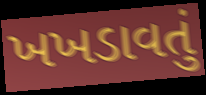
ખખડાવતું